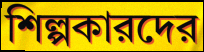
শিল্পকারদের